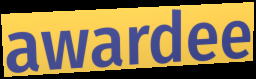
awardee